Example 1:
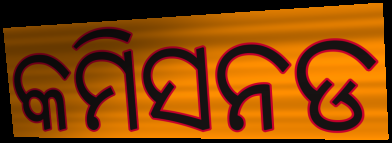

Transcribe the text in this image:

କମିସନଡ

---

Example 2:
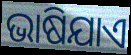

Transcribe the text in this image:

ଭାଷିଯାଏ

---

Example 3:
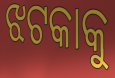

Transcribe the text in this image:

ଝଟକାକୁ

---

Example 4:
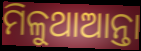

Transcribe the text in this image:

ମିଳୁଥାଆନ୍ତା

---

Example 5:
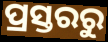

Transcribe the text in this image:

ପ୍ରସ୍ତରରୁ